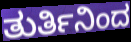
ತುರ್ತಿನಿಂದ